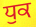
ਧੁਕ